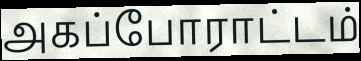
அகப்போராட்டம்